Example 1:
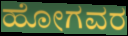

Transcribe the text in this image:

ಹೋಗವರ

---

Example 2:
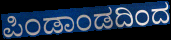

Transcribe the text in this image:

ಪಿಂಡಾಂಡದಿಂದ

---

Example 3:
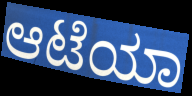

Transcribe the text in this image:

ಆಟೆಯಾ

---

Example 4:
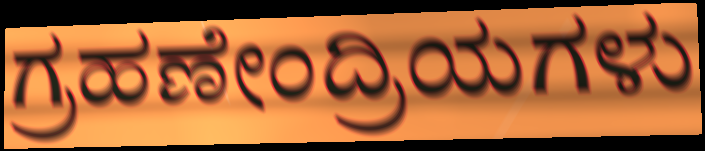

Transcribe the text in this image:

ಗ್ರಹಣೇಂದ್ರಿಯಗಳು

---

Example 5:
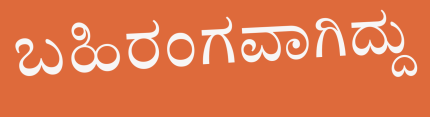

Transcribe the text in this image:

ಬಹಿರಂಗವಾಗಿದ್ದು